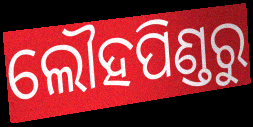
ଲୌହପିଣ୍ଡରୁ